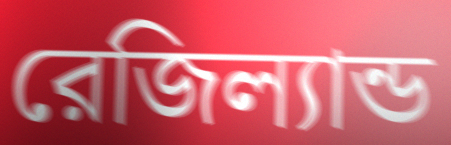
রেজিল্যান্ড